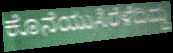
ಕೊನೆಯುಸಿರೆಳೆದಿದ್ದು